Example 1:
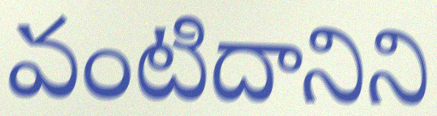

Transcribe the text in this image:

వంటిదానిని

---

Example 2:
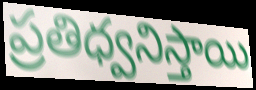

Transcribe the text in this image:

ప్రతిధ్వనిస్తాయి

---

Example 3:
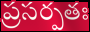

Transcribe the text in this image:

ప్రసర్పతః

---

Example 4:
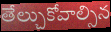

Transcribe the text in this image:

తేల్చుకోవాల్సిన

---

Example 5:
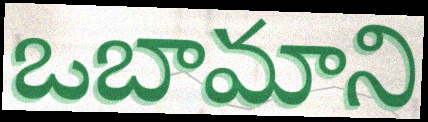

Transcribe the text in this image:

ఒబామాని